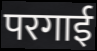
परगाई